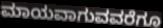
ಮಾಯವಾಗುವವರೆಗೂ